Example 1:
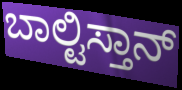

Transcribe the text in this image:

ಬಾಲ್ಟಿಸ್ತಾನ್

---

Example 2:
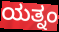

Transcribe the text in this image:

ಯತ್ನಂ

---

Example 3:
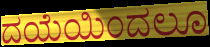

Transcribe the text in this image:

ದಯೆಯಿಂದಲೂ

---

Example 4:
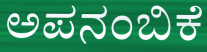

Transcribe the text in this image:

ಅಪನಂಬಿಕೆ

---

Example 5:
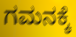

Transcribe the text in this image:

ಗಮನಕ್ಕೆ